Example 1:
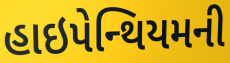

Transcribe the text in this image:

હાઇપેન્થિયમની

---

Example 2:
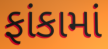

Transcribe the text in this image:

ફાંકામાં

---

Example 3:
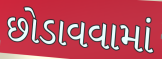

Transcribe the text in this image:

છોડાવવામાં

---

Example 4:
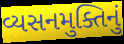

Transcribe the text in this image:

વ્યસનમુક્તિનું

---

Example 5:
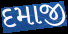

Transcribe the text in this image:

દમાજી